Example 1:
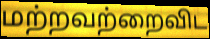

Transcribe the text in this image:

மற்றவற்றைவிட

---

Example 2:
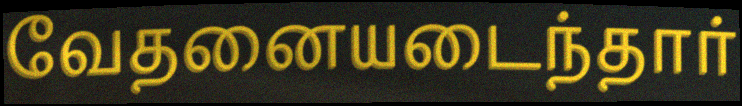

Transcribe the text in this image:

வேதனையடைந்தார்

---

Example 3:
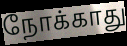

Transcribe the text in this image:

நோக்காது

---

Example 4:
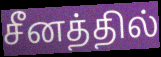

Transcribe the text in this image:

சீனத்தில்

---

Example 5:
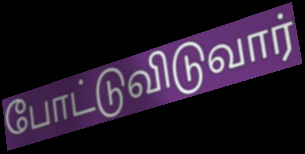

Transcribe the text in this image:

போட்டுவிடுவார்